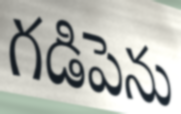
గడిపెను